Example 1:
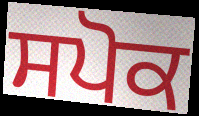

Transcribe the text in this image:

ਸਪੋਕ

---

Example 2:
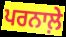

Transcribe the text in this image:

ਪਰਨਾਲ਼ੇ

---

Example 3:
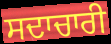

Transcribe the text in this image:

ਸਦਾਚਾਰੀ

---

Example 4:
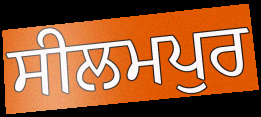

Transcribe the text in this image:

ਸੀਲਮਪੁਰ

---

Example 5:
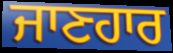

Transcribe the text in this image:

ਜਾਣਹਾਰ